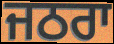
ਜਠਰਾ